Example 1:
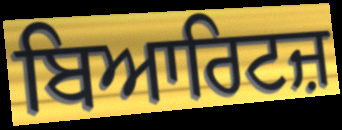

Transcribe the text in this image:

ਬਿਆਰਿਟਜ਼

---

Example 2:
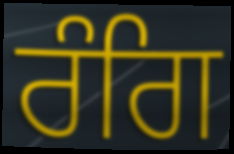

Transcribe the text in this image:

ਰੰਗਿ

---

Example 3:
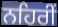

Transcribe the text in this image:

ਨਹਿਰੀਂ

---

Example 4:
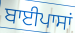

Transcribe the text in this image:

ਬਾਈਪਾਸਾਂ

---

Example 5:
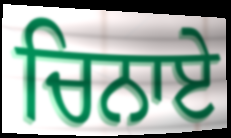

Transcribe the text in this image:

ਚਿਨਾਏ